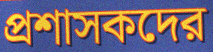
প্রশাসকদের